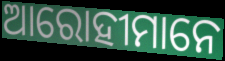
ଆରୋହୀମାନେ